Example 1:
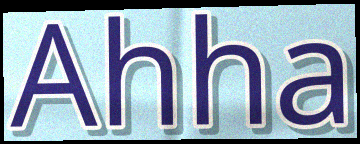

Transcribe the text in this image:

Ahha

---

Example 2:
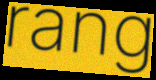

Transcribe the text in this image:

rang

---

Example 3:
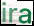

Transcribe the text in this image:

ira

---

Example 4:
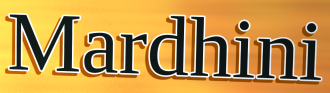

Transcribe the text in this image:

Mardhini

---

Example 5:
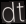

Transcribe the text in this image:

dt